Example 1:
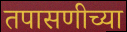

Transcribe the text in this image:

तपासणीच्या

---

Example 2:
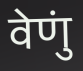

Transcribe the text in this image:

वेणुं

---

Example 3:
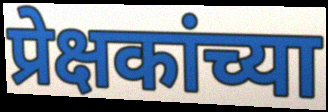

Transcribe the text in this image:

प्रेक्षकांच्या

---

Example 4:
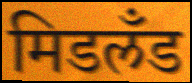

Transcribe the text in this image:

मिडलँड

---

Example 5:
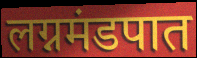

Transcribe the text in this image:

लग्नमंडपात